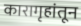
कारागृहांतून